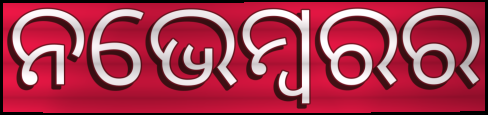
ନଭେମ୍ବରର